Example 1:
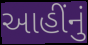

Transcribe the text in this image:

આહીંનું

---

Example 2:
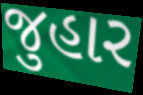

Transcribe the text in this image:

જુહાર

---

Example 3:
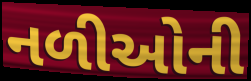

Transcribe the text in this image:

નળીઓની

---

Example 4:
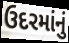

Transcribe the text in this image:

ઉદરમાંનું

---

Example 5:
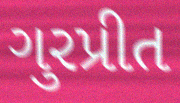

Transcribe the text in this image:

ગુરપ્રીત